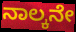
ನಾಲ್ಕನೇ